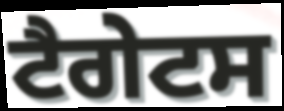
ਟੈਗੇਟਸ